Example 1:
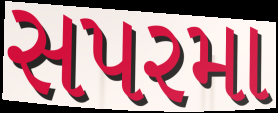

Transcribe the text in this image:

સપરમા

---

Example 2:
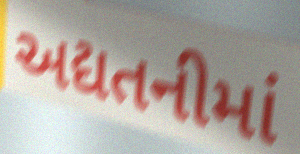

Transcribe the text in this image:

અદ્યતનીમાં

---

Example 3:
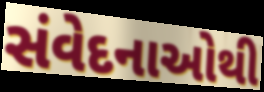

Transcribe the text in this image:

સંવેદનાઓથી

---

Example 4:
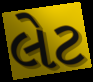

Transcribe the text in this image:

લેટ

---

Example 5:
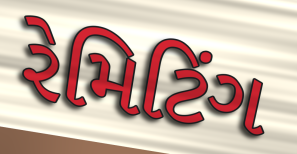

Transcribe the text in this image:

રેમિટિંગ